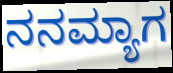
ನನಮ್ಯಾಗ